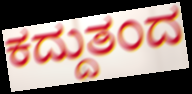
ಕದ್ದುತಂದ